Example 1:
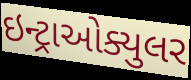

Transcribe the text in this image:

ઇન્ટ્રાઓક્યુલર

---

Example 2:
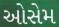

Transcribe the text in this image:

ઓસેમ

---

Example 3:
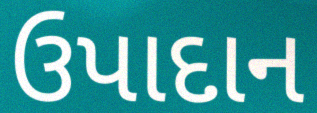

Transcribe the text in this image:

ઉપાદાન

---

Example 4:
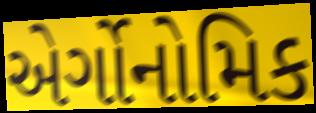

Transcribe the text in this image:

એર્ગોનોમિક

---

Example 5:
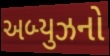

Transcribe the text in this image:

અબ્યુઝનો